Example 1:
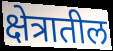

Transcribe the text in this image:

क्षेत्रातील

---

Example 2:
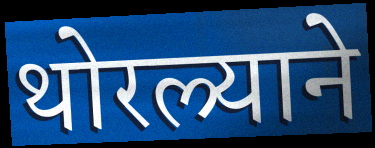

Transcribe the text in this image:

थोरल्याने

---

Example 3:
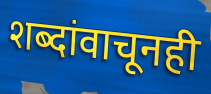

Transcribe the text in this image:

शब्दांवाचूनही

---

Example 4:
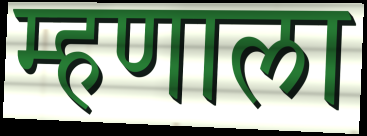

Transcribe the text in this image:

म्हणाला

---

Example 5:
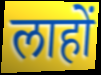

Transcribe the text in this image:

लाहों